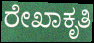
ರೇಖಾಕೃತಿ